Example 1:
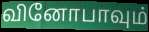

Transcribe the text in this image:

வினோபாவும்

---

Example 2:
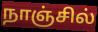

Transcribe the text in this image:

நாஞ்சில்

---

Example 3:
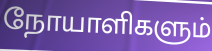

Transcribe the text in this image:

நோயாளிகளும்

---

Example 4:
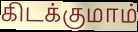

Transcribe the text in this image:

கிடக்குமாம்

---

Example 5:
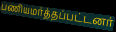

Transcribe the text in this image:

பணியமர்த்தப்பட்டனர்